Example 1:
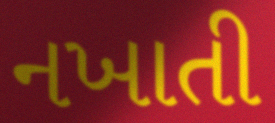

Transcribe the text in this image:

નખાતી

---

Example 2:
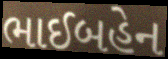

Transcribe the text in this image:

ભાઈબહેન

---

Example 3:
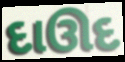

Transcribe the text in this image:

દાઊદ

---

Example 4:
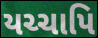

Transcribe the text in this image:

યચ્ચાપિ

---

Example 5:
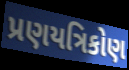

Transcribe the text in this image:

પ્રણયત્રિકોણ